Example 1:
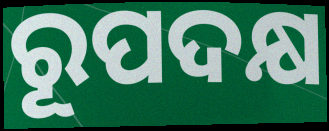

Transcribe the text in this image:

ରୂପଦକ୍ଷ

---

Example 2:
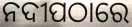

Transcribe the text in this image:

ନଦୀପଠାରେ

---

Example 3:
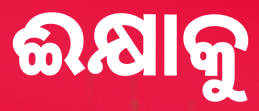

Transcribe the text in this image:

ଈକ୍ଷାକୁ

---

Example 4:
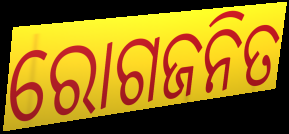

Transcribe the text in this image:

ରୋଗଜନିତ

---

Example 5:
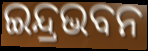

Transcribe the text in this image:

ଇନ୍ଦ୍ରଭବନ